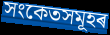
সংকেতসমূহৰ